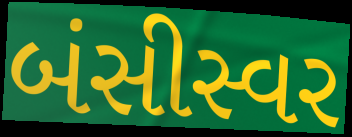
બંસીસ્વર